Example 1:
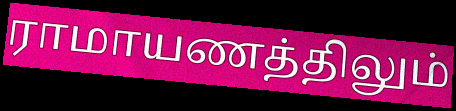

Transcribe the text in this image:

ராமாயணத்திலும்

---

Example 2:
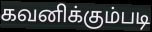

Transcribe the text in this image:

கவனிக்கும்படி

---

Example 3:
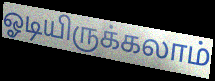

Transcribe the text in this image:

ஓடியிருக்கலாம்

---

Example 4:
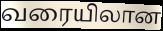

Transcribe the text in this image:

வரையிலான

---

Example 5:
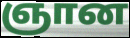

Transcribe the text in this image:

ஞான